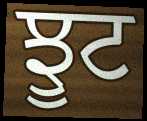
ਝੂਟ